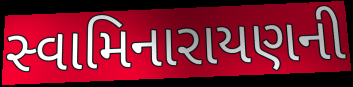
સ્વામિનારાયણની